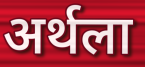
अर्थला